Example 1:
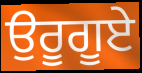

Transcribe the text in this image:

ਉਰੂਗੂਏ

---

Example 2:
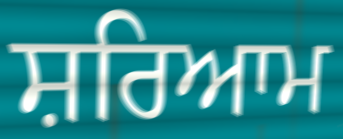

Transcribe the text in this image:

ਸ਼ਰਿਆਮ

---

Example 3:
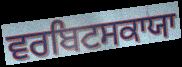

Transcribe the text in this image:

ਵਰਬਿਟਸਕਾਯਾ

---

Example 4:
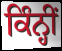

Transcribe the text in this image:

ਕਿੰਨ੍ਹੀਂ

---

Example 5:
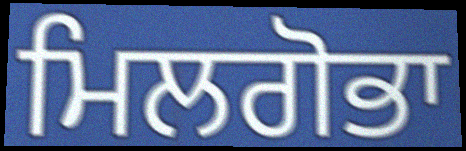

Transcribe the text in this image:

ਮਿਲਗੋਭਾ